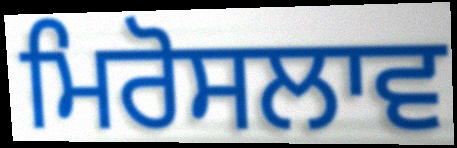
ਮਿਰੋਸਲਾਵ